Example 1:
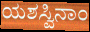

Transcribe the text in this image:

ಯಶಸ್ವಿನಾಂ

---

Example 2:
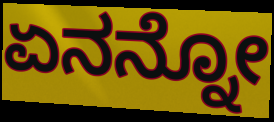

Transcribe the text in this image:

ಏನನ್ನೋ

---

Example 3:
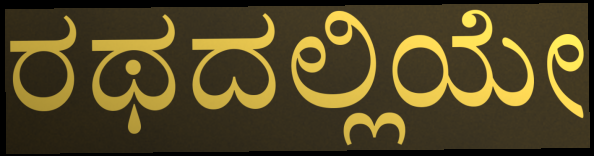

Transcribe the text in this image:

ರಥದಲ್ಲಿಯೇ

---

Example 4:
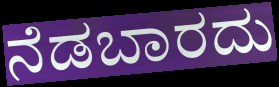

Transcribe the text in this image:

ನೆಡಬಾರದು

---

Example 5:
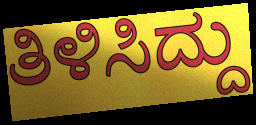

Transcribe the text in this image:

ತಿಳಿಸಿದ್ದು